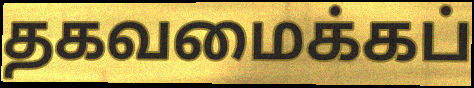
தகவமைக்கப்